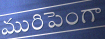
మురిపెంగా